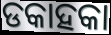
ଡକାହକା